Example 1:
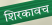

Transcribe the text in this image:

शिरकावच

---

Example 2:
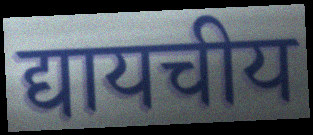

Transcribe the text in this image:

द्यायचीय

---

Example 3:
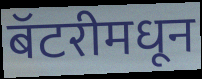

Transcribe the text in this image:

बॅटरीमधून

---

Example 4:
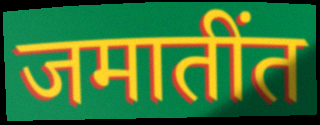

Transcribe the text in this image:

जमातींत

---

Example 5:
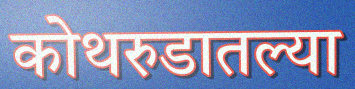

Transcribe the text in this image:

कोथरुडातल्या